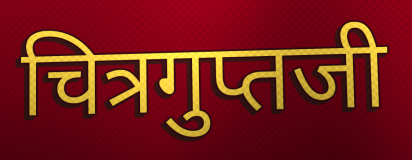
चित्रगुप्तजी